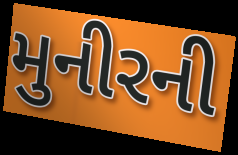
મુનીરની